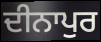
ਦੀਨਾਪੁਰ